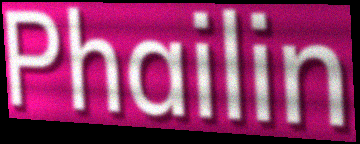
Phailin